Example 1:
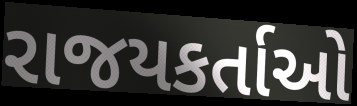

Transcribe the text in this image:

રાજયકર્તાઓ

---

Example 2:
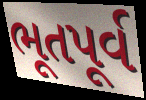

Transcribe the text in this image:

ભૂતપૂર્વ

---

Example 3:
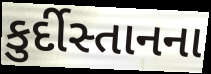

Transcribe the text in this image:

કુર્દીસ્તાનના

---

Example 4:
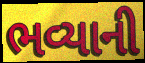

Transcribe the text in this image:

ભવ્યાની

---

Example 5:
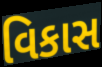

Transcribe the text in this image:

વિકાસ